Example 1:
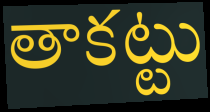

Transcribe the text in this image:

తాకట్టు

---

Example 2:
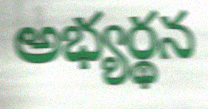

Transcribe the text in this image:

అభ్యర్థన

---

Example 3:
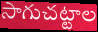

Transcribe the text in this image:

సాగుచట్టాల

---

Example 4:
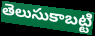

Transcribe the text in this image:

తెలుసుకాబట్టి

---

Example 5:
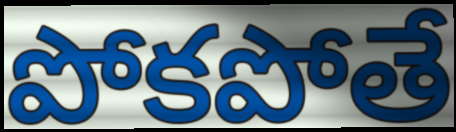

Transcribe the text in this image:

పోకపోతే